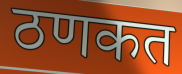
ठणकत